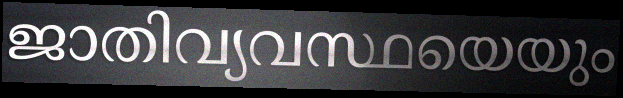
ജാതിവ്യവസ്ഥയെയും